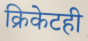
क्रिकेटही